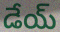
డేయ్